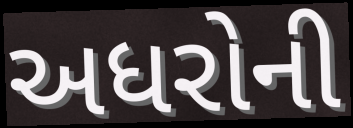
અધરોની